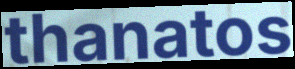
thanatos